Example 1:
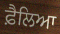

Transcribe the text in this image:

ਫ਼ੈਲਿਆ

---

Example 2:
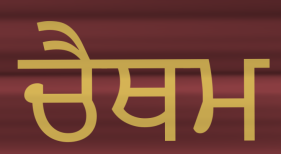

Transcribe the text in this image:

ਚੈਥਮ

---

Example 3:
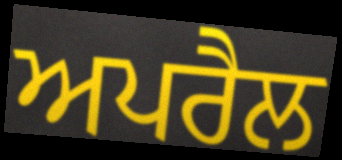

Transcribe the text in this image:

ਅਪਰੈਲ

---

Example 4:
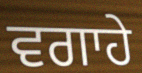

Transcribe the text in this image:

ਵਗਾਹੇ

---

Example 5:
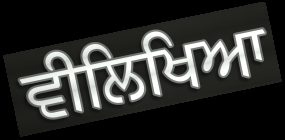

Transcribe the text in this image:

ਵੀਲਿਖਿਆ